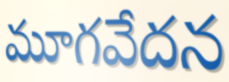
మూగవేదన